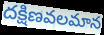
దక్షిణవలమాన